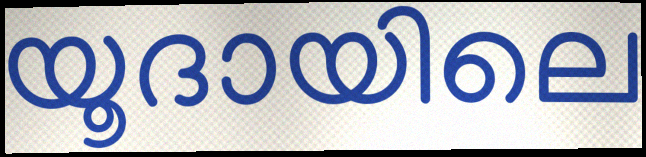
യൂദായിലെ